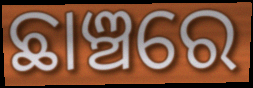
ଛାଞ୍ଚରେ